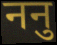
ननु